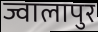
ज्वालापुर